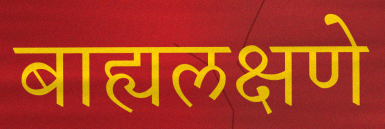
बाह्यलक्षणे